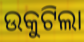
ଉକୁଟିଲା